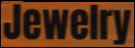
Jewelry